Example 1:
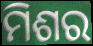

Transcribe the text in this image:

ମିଶର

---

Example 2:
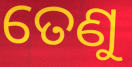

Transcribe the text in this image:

ତେଣୁ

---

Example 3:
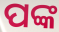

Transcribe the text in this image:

ପଙ୍କ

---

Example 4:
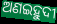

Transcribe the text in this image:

ଅଣଇହୁଦୀ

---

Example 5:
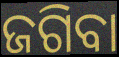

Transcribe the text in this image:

ଜଗିବା